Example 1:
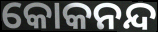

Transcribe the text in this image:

କୋକନନ୍ଦ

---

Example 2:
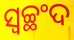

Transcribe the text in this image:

ସ୍ୱଚ୍ଛଂଦ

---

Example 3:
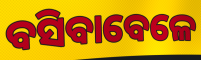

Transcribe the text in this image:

ବସିବାବେଳେ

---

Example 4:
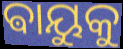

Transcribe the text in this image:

ଵାୟୁକୁ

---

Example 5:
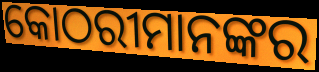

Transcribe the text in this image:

କୋଠରୀମାନଙ୍କର